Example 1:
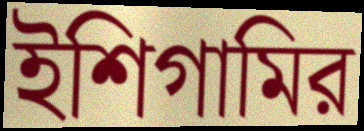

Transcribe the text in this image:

ইশিগামির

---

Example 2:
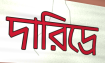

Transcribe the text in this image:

দারিদ্রে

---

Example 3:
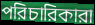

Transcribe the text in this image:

পরিচারিকারা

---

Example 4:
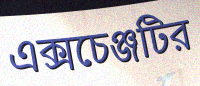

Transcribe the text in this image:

এক্সচেঞ্জটির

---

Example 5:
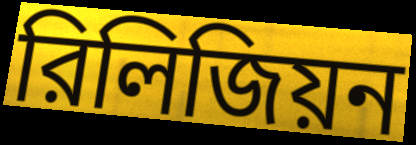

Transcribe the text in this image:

রিলিজিয়ন